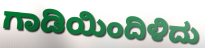
ಗಾಡಿಯಿಂದಿಳಿದು